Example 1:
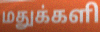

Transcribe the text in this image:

மதுக்களி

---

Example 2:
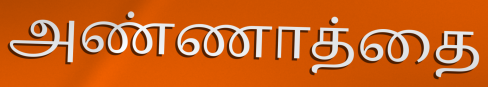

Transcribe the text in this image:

அண்ணாத்தை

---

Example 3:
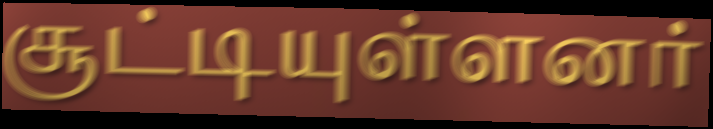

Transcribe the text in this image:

சூட்டியுள்ளனர்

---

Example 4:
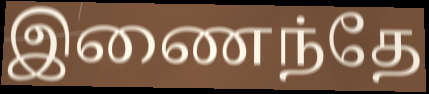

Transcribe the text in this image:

இணைந்தே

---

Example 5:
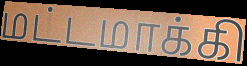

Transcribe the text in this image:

மட்டமாக்கி